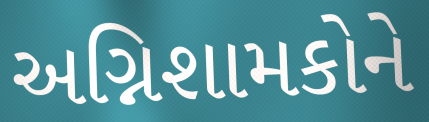
અગ્નિશામકોને